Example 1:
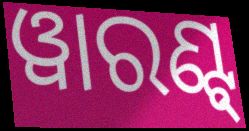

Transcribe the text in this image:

ୱାରଣ୍ଟ୍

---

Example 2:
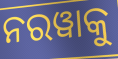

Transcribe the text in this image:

ନରୱାକୁ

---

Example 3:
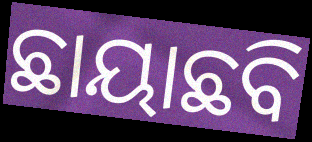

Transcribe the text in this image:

ଛାୟାଛବି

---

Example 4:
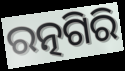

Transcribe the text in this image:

ରତ୍ନଗିରି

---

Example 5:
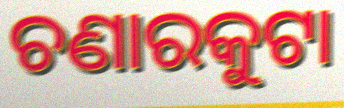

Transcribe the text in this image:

ଚଣାରକୁଟା